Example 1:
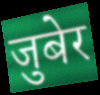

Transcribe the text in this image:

जुबेर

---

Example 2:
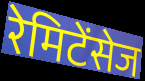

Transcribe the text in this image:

रेमिटेंसेज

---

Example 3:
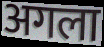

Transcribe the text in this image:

अगला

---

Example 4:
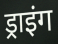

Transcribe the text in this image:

ड्राइंग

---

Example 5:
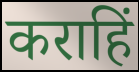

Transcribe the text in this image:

कराहिं